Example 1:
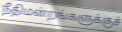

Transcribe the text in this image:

நீதிமன்றங்களுக்குச்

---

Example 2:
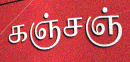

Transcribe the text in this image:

கஞ்சஞ்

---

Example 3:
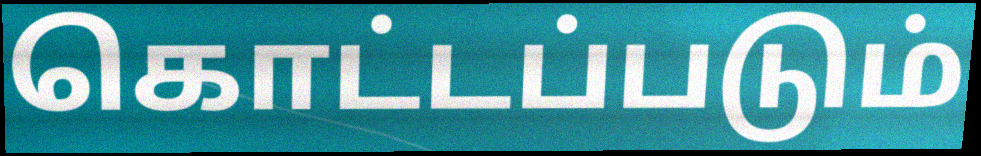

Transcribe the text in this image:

கொட்டப்படும்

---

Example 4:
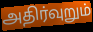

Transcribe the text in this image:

அதிர்வுறும்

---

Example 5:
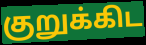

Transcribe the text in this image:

குறுக்கிட